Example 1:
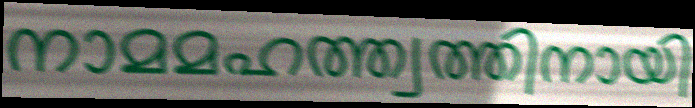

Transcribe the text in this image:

നാമമഹത്ത്വത്തിനായി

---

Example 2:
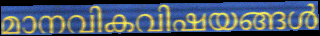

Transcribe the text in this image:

മാനവികവിഷയങ്ങൾ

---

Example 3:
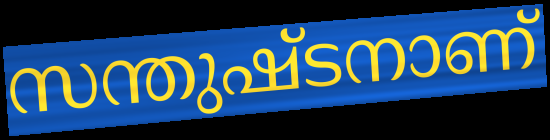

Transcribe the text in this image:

സന്തുഷ്ടനാണ്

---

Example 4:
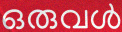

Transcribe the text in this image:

ഒരുവൾ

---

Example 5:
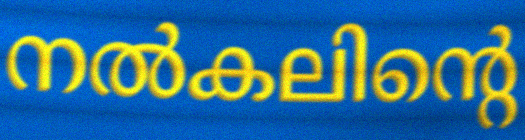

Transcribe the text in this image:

നൽകലിന്റെ